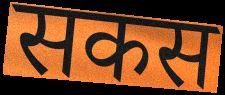
सकस